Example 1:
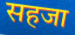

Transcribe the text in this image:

सहजा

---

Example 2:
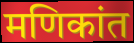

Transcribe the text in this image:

मणिकांत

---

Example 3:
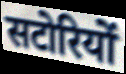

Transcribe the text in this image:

सटोरियों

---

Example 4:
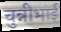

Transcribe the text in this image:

चुन्नीभाई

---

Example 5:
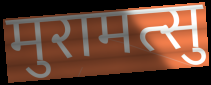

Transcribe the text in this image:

मुरामत्सु